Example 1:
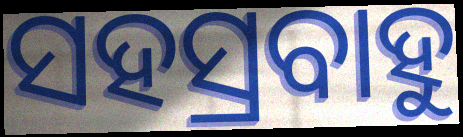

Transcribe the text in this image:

ସହସ୍ରବାହୁ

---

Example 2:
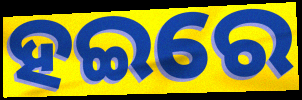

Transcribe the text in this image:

ହଇରେ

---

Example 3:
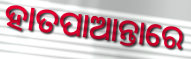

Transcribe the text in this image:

ହାତପାଆନ୍ତାରେ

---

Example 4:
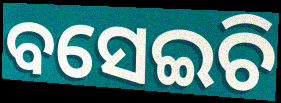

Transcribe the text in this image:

ବସେଇଚି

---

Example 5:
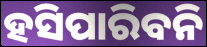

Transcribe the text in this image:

ହସିପାରିବନି